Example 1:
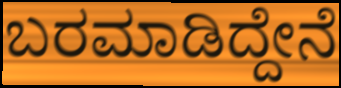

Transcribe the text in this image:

ಬರಮಾಡಿದ್ದೇನೆ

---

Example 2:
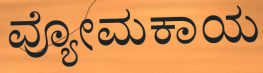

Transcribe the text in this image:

ವ್ಯೋಮಕಾಯ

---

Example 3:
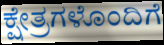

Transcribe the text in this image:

ಕ್ಷೇತ್ರಗಳೊಂದಿಗೆ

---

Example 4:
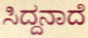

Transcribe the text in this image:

ಸಿದ್ದನಾದೆ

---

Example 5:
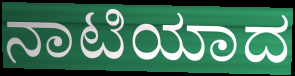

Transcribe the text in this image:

ನಾಟಿಯಾದ